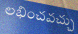
లభించవచ్చు